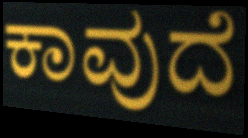
ಕಾವುದೆ